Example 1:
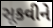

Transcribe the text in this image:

સૂકવીને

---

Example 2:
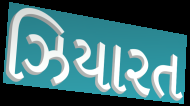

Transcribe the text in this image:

ઝિયારત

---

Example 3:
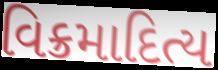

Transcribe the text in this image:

વિક્રમાદિત્‍ય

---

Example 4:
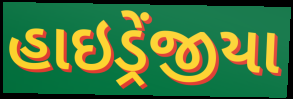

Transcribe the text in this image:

હાઇડ્રેંજીયા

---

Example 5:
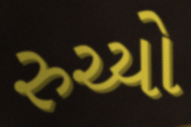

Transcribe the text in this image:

રુચ્યો